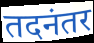
तदनंतर